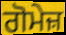
ਗੋਮੇਜ਼